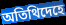
অতিথিদেহে